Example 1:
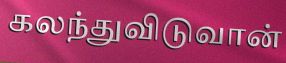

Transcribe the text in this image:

கலந்துவிடுவான்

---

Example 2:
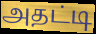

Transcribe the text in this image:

அதட்டி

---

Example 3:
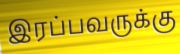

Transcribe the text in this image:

இரப்பவருக்கு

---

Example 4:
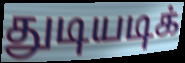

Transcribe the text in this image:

துடியடிக்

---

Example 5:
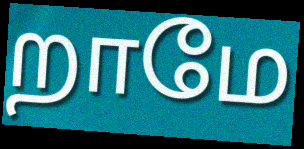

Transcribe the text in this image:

றாமே